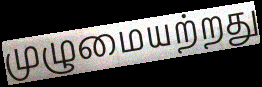
முழுமையற்றது